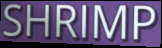
SHRIMP